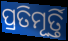
ପ୍ରତିମୂର୍ତ୍ତି